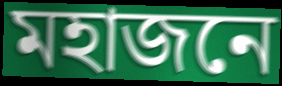
মহাজনে